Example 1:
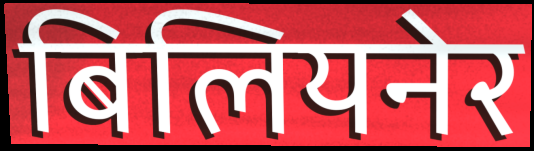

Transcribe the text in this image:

बिलियनेर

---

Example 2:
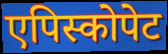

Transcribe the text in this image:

एपिस्कोपेट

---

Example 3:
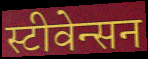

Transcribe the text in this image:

स्टीवेन्सन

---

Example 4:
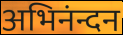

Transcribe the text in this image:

अभिनंन्दन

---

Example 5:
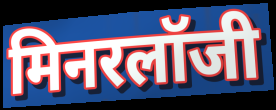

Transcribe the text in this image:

मिनरलॉजी